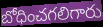
బోధించగలిగారు